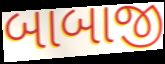
બાબાજી